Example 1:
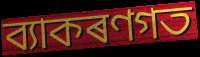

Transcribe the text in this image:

ব্যাকৰণগত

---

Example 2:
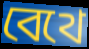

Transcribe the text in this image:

বেথে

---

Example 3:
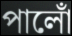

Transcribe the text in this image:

পালোঁ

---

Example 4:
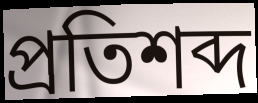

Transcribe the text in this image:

প্ৰতিশব্দ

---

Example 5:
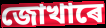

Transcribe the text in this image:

জোখাৰে